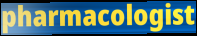
pharmacologist